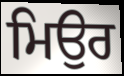
ਮਿਉਰ